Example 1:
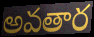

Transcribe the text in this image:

అవతార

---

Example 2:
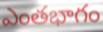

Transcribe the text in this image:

ఎంతభాగం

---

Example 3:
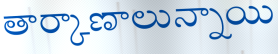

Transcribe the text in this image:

తార్కాణాలున్నాయి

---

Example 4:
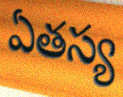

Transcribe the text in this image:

ఏతస్య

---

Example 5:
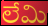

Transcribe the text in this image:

లేమి